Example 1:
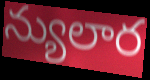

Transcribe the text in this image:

న్యులార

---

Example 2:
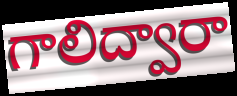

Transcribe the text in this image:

గాలిద్వారా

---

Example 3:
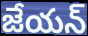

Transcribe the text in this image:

జేయన్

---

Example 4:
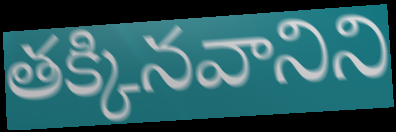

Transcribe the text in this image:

తక్కినవానిని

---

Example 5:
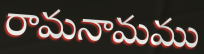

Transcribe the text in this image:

రామనామము